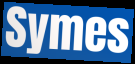
Symes